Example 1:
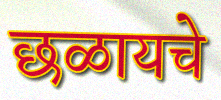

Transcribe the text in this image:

छळायचे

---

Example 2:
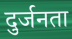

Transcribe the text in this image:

दुर्जनता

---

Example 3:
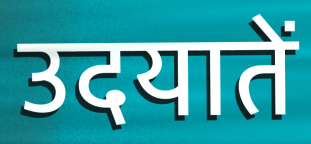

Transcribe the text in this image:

उदयातें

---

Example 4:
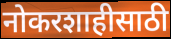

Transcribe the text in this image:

नोकरशाहीसाठी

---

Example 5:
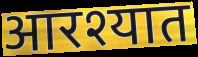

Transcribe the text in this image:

आरश्यात